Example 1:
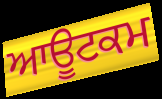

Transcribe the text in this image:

ਆਊਟਕਮ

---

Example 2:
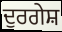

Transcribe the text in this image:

ਦੁਰਗੇਸ਼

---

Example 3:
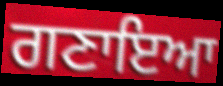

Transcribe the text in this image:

ਗਣਾਇਆ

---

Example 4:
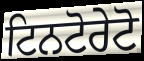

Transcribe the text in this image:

ਟਿਨਟੋਰੇਟੋ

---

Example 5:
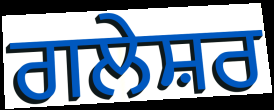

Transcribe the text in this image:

ਗਲੇਸ਼ਰ